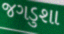
જગડુશા